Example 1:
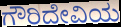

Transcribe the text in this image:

ಗೌರಿದೇವಿಯ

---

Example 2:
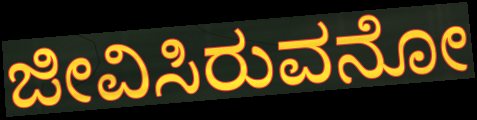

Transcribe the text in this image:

ಜೀವಿಸಿರುವನೋ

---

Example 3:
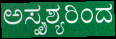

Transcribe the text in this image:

ಅಸ್ಪೃಶ್ಯರಿಂದ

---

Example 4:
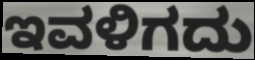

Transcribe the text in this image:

ಇವಳಿಗದು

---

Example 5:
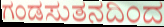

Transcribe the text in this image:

ಗಂಡಸುತನದಿಂದ